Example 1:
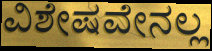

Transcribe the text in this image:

ವಿಶೇಷವೇನಲ್ಲ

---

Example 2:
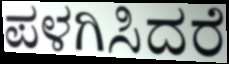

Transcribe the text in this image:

ಪಳಗಿಸಿದರೆ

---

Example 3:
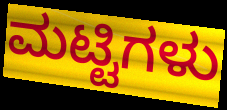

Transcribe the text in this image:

ಮಟ್ಟಿಗಳು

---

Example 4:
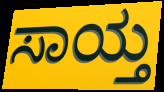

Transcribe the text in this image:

ಸಾಯ್ತ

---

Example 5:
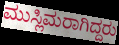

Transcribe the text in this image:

ಮುಸ್ಲಿಮರಾಗಿದ್ದರು